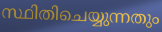
സ്ഥിതിചെയ്യുന്നതും